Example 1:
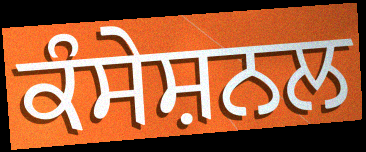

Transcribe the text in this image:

ਕੰਸੇਸ਼ਨਲ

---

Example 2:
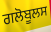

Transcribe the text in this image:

ਗਲੋਬੂਲਸ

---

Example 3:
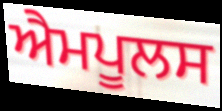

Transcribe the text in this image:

ਐਮਪੂਲਸ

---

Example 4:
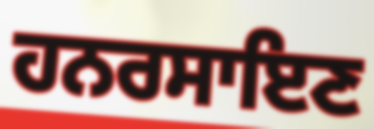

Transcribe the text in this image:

ਹਨਰਸਾਇਣ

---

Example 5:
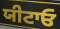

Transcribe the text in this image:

ਯੀਟਾਓ